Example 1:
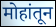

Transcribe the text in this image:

मोहांतून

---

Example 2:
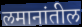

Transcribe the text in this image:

लमानांतील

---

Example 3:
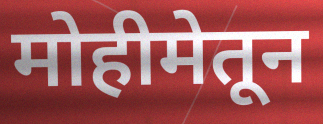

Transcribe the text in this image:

मोहीमेतून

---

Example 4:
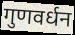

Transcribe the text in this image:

गुणवर्धन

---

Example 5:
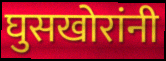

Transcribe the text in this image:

घुसखोरांनी